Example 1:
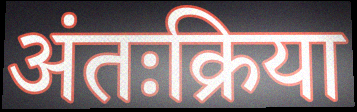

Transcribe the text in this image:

अंतःक्रिया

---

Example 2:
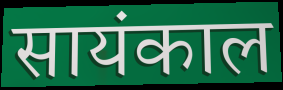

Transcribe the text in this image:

सायंकाल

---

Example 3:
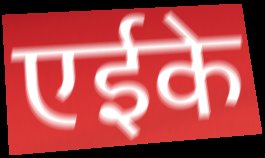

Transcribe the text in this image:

एईके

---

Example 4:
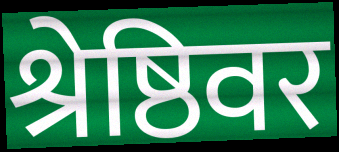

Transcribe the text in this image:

श्रेष्ठिवर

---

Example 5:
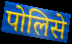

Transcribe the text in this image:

पोलिसे